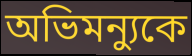
অভিমন্যুকে